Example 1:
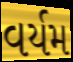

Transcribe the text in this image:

વર્યમ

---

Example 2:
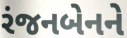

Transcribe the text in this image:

રંજનબેનને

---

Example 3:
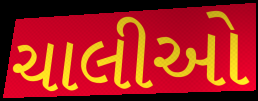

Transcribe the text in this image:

ચાલીઓ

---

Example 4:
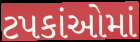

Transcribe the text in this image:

ટપકાંઓમાં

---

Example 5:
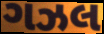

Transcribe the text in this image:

ગઝલ